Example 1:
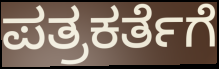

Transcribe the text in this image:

ಪತ್ರಕರ್ತೆಗೆ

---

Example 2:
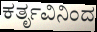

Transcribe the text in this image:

ಕರ್ತೃವಿನಿಂದ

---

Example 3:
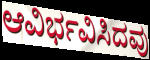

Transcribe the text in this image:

ಆವಿರ್ಭವಿಸಿದವು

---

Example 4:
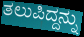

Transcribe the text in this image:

ತಲುಪಿದ್ದನ್ನು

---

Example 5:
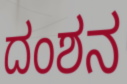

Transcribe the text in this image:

ದಂಶನ